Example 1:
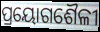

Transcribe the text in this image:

ପ୍ରୟୋଗଶୈଳୀ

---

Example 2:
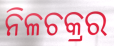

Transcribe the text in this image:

ନିଳଚକ୍ରର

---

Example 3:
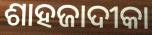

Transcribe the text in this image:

ଶାହଜାଦୀକା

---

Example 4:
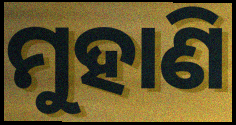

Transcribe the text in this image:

ମୁହାଣି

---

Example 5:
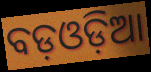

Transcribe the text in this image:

ବଡ଼ଓଡ଼ିଆ